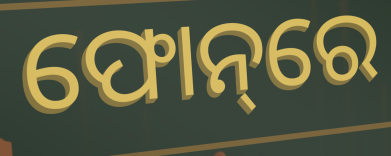
ଫୋନ୍‌ରେ